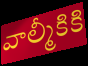
వాల్మీకికి